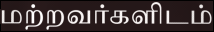
மற்றவர்களிடம்